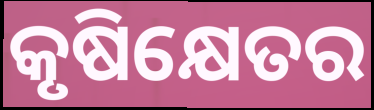
କୃଷିକ୍ଷେତର